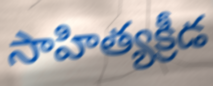
సాహిత్యక్రీడ